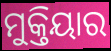
ମୁକ୍ତିୟାର